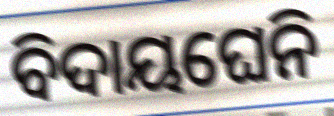
ବିଦାୟଘେନି